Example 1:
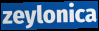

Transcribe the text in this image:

zeylonica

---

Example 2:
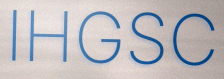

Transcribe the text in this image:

IHGSC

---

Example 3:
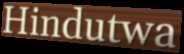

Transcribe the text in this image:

Hindutwa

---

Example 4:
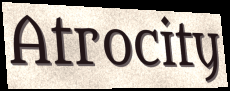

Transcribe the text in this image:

Atrocity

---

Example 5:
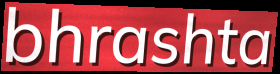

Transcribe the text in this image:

bhrashta